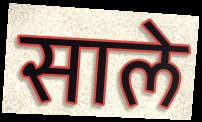
साले